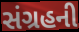
સંગ્રહની